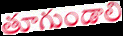
తూగుండాలి